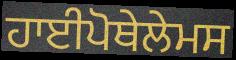
ਹਾਈਪੋਥੇਲੇਮਸ